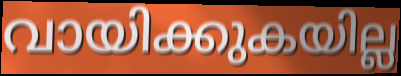
വായിക്കുകയില്ല